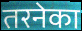
तरनेका